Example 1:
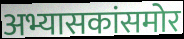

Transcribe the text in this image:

अभ्यासकांसमोर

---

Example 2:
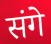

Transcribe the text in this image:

संगे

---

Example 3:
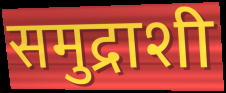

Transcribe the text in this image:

समुद्राशी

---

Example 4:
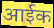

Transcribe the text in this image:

आईक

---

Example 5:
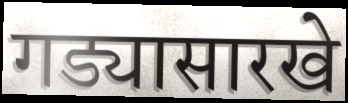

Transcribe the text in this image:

गड्यासारखे